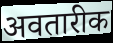
अवतारीक